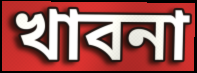
খাবনা